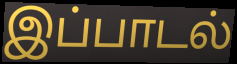
இப்பாடல்